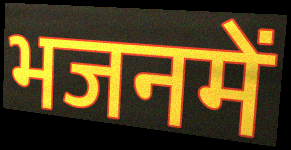
भजनमें